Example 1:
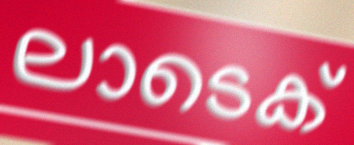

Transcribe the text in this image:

ലാടെക്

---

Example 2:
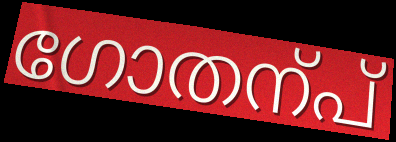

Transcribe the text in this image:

ഗോതന്പ്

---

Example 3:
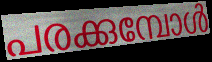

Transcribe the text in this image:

പരക്കുമ്പോൾ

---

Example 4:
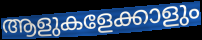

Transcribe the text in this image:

ആളുകളേക്കാളും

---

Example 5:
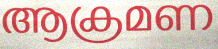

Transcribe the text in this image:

ആക്രമണ